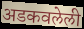
अडकवलेली